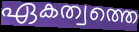
ഏകത്വത്തെ